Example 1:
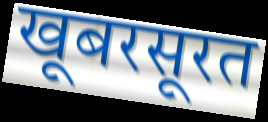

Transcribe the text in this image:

खूबरसूरत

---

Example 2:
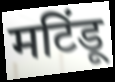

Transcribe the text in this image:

मटिंडू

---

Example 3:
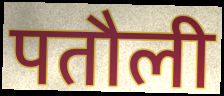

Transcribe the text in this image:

पतौली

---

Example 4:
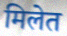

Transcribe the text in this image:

मिलेत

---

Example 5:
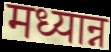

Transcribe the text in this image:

मध्यान्न